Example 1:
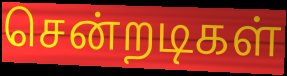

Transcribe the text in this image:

சென்றடிகள்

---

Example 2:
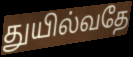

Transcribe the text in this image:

துயில்வதே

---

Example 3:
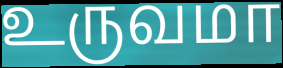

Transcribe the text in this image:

உருவமா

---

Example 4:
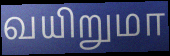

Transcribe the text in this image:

வயிறுமா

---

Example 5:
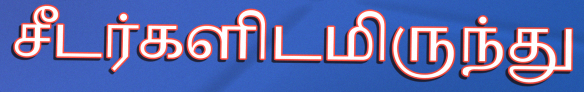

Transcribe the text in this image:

சீடர்களிடமிருந்து